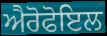
ਐਰੋਫੋਇਲ